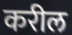
करील